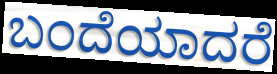
ಬಂದೆಯಾದರೆ